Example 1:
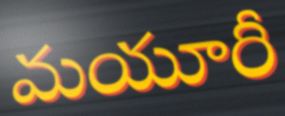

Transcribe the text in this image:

మయూరీ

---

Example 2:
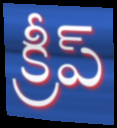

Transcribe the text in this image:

క్రీప్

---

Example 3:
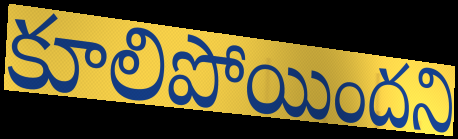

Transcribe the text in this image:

కూలిపోయిందని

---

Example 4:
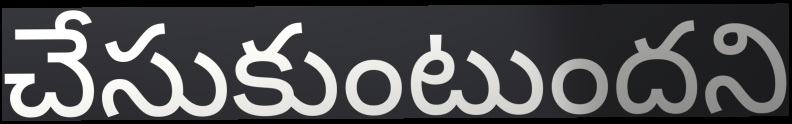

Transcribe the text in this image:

చేసుకుంటుందని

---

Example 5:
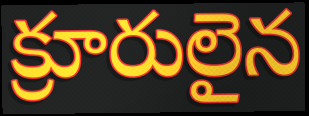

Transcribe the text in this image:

క్రూరులైన